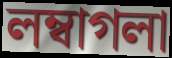
লম্বাগলা